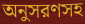
অনুসরণসহ